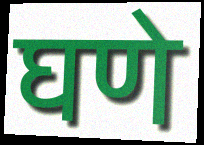
घणे